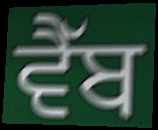
ਵੈੱਬ